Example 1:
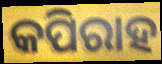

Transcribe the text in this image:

କପିରାହ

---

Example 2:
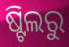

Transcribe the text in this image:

ଷ୍ଟିଲରୁ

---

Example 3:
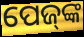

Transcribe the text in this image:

ପେଜ୍‌ଙ୍କ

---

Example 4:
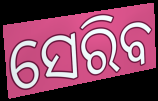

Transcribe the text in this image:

ସେରିବ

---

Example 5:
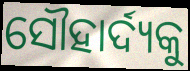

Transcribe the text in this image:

ସୌହାର୍ଦ୍ୟକୁ